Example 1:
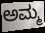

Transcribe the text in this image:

ಅಮ್ಮ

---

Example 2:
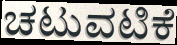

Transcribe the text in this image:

ಚಟುವಟಿಕೆ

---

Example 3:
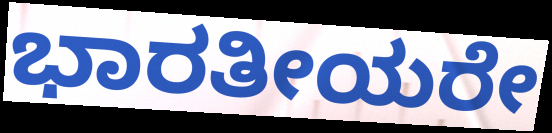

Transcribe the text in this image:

ಭಾರತೀಯರೇ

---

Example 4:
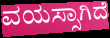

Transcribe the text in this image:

ವಯಸ್ಸಾಗಿದೆ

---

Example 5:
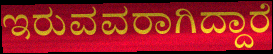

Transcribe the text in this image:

ಇರುವವರಾಗಿದ್ದಾರೆ